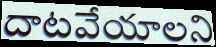
దాటవేయాలని